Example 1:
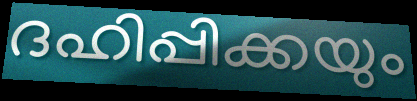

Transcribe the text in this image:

ദഹിപ്പിക്കയും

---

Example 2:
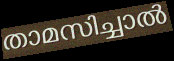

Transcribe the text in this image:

താമസിച്ചാൽ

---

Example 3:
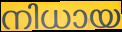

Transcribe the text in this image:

നിധായ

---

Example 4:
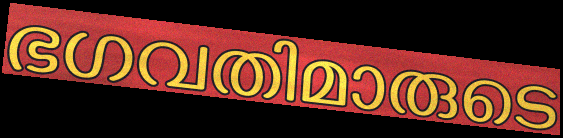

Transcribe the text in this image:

ഭഗവതിമാരുടെ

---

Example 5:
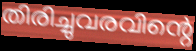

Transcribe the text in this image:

തിരിച്ചുവരവിന്റെ